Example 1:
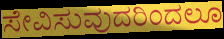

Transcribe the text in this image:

ಸೇವಿಸುವುದರಿಂದಲೂ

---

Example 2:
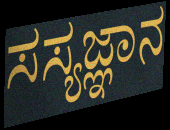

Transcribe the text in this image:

ಸಸ್ಯಜ್ಞಾನ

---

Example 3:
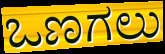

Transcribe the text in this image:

ಒಣಗಲು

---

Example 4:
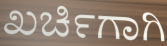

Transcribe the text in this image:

ಖರ್ಚಿಗಾಗಿ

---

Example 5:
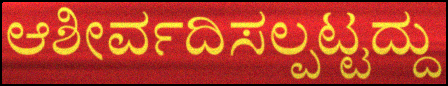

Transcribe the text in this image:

ಆಶೀರ್ವದಿಸಲ್ಪಟ್ಟದ್ದು